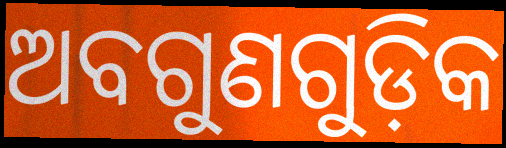
ଅବଗୁଣଗୁଡ଼ିକ